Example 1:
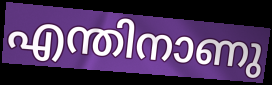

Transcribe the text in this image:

എന്തിനാണു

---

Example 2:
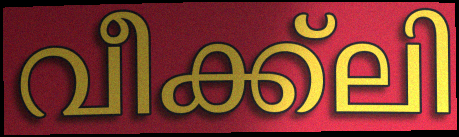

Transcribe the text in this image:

വീക്ക്ലി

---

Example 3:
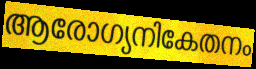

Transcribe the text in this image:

ആരോഗ്യനികേതനം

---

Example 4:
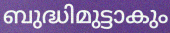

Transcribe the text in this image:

ബുദ്ധിമുട്ടാകും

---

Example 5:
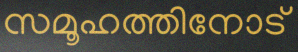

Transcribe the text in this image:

സമൂഹത്തിനോട്